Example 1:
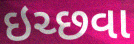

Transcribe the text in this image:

ઇચ્છવા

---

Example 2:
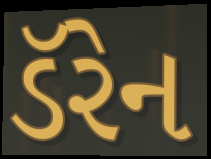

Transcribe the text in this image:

ડૅરેન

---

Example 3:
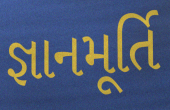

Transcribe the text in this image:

જ્ઞાનમૂર્તિ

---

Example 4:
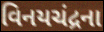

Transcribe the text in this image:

વિનયચંદ્રના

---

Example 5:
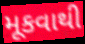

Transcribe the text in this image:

મૂકવાથી